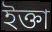
ইক্তা